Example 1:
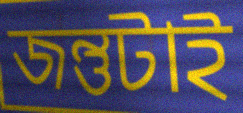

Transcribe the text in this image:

জন্তুটাই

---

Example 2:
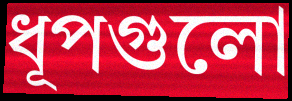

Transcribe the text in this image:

ধূপগুলো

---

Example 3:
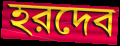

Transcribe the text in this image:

হরদেব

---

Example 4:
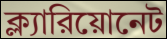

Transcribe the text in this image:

ক্ল্যারিয়োনেট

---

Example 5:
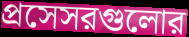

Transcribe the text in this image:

প্রসেসরগুলোর